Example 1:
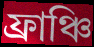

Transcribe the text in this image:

ফ্রাঞ্চি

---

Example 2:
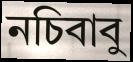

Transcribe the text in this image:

নচিবাবু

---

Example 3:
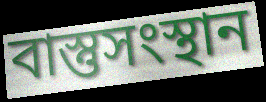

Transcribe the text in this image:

বাস্তুসংস্থান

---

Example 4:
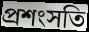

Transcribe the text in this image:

প্রশংসতি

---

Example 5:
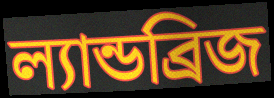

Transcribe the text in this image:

ল্যান্ডব্রিজ